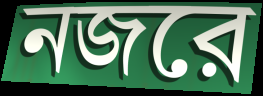
নজরে